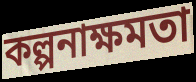
কল্পনাক্ষমতা